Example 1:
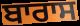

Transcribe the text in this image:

ਬਾਰਾਸ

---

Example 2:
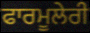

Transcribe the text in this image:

ਫਾਰਮੂਲੇਰੀ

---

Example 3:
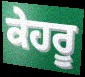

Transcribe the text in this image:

ਕੇਹਰੂ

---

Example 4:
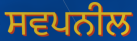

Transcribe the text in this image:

ਸਵਪਨੀਲ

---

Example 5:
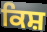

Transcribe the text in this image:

ਕਿਸ਼